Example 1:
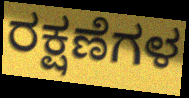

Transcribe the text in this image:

ರಕ್ಷಣೆಗಳ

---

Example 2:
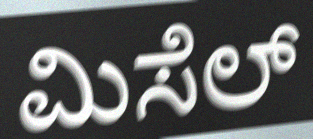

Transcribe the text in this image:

ಮಿಸೆಲ್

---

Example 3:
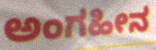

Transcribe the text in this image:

ಅಂಗಹೀನ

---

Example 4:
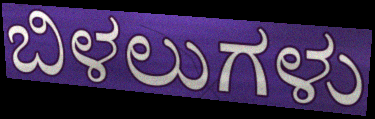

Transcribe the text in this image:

ಬಿಳಲುಗಳು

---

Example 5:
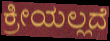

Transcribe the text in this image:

ಕ್ರೀಯಲ್ಲದೆ